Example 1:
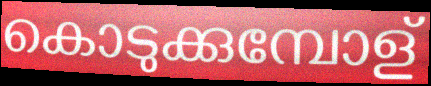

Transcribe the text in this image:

കൊടുക്കുമ്പോള്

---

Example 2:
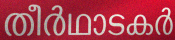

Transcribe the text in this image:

തീർഥാടകർ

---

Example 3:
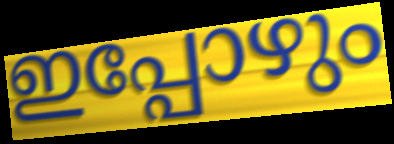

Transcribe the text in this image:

ഇപ്പോഴും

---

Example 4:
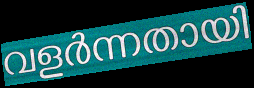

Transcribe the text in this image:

വളർന്നതായി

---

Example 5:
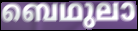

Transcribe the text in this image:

ബെഥുലാ